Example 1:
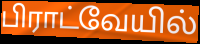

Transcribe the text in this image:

பிராட்வேயில்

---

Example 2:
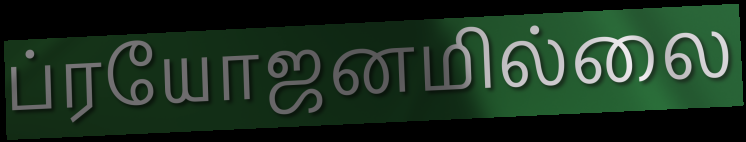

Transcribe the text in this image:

ப்ரயோஜனமில்லை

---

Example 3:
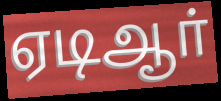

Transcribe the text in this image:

ஏடிஆர்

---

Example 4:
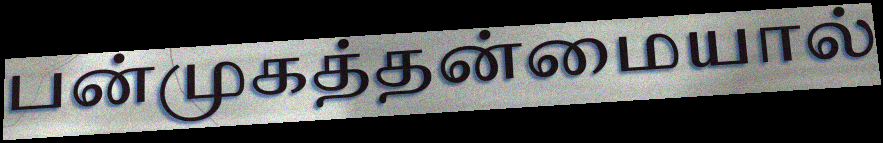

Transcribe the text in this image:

பன்முகத்தன்மையால்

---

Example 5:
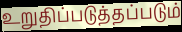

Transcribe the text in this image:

உறுதிப்படுத்தப்படும்